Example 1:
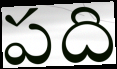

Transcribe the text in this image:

పది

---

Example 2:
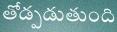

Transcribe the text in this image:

తోడ్పడుతుంది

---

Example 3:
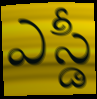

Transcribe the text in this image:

ఎస్డీ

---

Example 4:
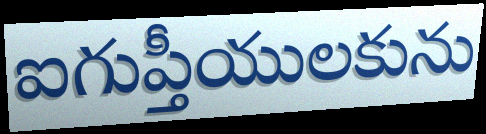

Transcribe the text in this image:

ఐగుప్తీయులకును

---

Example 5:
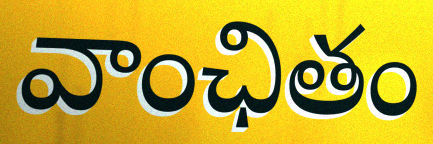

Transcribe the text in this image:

వాంఛితం